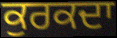
ਕੁਰਕਦਾ